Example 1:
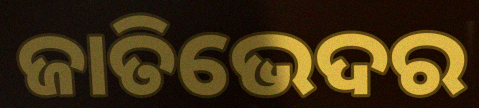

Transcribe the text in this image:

ଜାତିଭେଦର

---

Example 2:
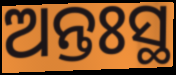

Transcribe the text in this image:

ଅନ୍ତଃସ୍ଥ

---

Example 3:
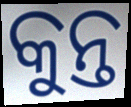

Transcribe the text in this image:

କୁନ୍ତ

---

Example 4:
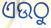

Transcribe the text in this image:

ଏଉଠୁ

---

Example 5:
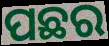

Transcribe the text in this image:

ପଛର